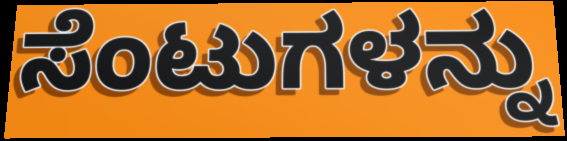
ಸೆಂಟುಗಳನ್ನು